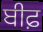
ਬੀਫ਼